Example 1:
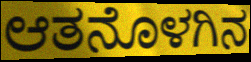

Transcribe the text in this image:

ಆತನೊಳಗಿನ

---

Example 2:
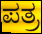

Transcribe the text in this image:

ಪತ್ರ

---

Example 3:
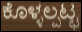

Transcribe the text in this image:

ಕೊಳ್ಳಲ್ಪಟ್ಟ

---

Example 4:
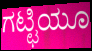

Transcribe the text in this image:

ಗಟ್ಟಿಯೂ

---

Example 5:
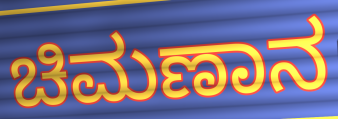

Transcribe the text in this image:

ಚಿಮಣಾನ